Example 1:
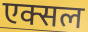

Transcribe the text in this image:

एक्सल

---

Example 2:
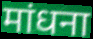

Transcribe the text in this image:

मांधना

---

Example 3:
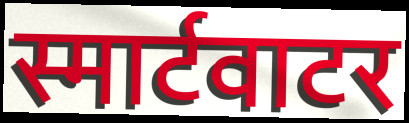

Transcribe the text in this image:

स्मार्टवाटर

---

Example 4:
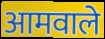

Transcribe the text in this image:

आमवाले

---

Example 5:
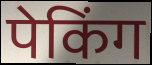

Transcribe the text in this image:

पेकिंग